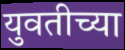
युवतीच्या